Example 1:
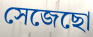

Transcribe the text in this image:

সেজেছো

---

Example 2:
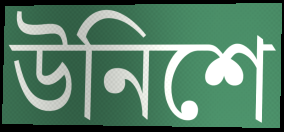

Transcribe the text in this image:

উনিশে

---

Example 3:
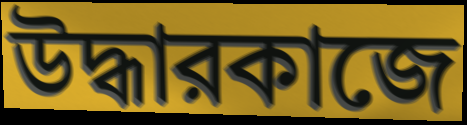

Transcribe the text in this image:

উদ্ধারকাজে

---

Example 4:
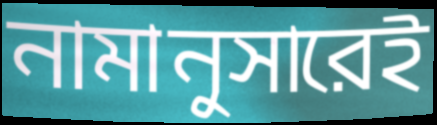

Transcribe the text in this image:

নামানুসারেই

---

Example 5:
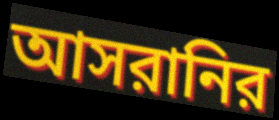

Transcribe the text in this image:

আসরানির